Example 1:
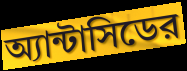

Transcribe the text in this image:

অ্যান্টাসিডের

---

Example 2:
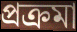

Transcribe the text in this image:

প্রক্রমা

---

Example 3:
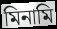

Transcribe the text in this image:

মিনামি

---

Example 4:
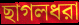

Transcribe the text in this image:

ছাগলধরা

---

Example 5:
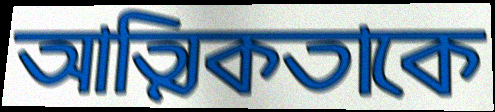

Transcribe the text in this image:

আত্মিকতাকে